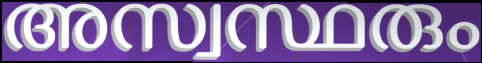
അസ്വസ്ഥരും